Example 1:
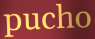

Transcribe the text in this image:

pucho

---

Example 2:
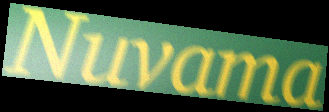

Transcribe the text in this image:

Nuvama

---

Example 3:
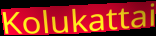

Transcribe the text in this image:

Kolukattai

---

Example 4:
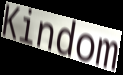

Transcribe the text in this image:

Kindom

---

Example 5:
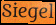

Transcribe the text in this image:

Siegel